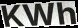
KWh